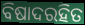
ବିଷାଦରହିତ